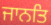
ਜਾਨਤਿ